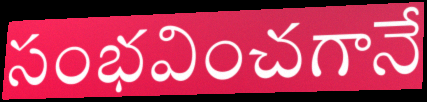
సంభవించగానే